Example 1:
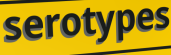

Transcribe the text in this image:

serotypes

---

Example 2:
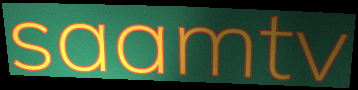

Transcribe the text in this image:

saamtv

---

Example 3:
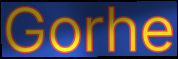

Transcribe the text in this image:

Gorhe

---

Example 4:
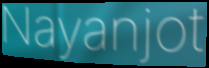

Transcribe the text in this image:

Nayanjot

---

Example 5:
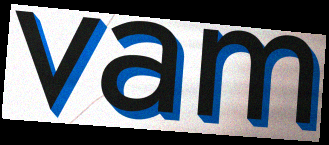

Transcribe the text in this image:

vam